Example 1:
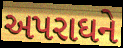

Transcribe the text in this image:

અપરાઘને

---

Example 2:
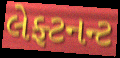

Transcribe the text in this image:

લેફ્ટનન્ટ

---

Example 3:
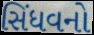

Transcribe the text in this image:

સિંધવનો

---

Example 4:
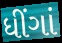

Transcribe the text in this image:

ધીંગાં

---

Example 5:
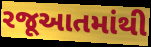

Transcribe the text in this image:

રજૂઆતમાંથી